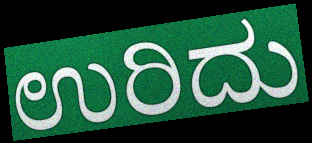
ಉರಿದು